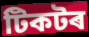
টিকটৰ